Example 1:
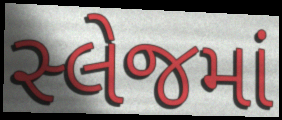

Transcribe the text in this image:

સ્લેજમાં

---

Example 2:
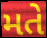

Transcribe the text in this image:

મતે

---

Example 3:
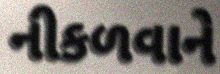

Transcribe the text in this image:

નીકળવાને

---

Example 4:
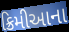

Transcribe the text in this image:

ક્રિમીઆના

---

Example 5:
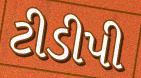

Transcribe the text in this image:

ટીડીપી